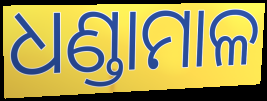
ଧଣ୍ଡାମାଳ